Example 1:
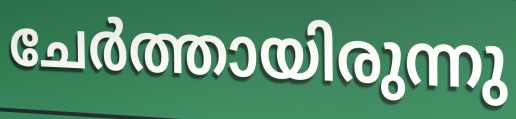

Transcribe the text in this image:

ചേർത്തായിരുന്നു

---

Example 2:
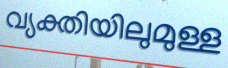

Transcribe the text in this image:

വ്യക്തിയിലുമുള്ള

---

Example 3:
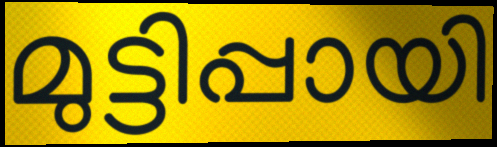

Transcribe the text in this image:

മുട്ടിപ്പായി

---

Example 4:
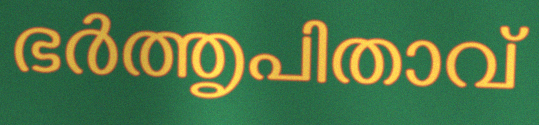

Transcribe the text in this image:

ഭർത്തൃപിതാവ്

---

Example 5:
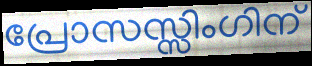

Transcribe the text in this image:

പ്രോസസ്സിംഗിന്